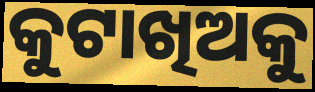
କୁଟାଖିଅକୁ